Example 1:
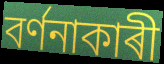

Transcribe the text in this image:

বৰ্ণনাকাৰী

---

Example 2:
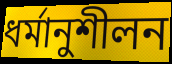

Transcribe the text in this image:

ধৰ্মানুশীলন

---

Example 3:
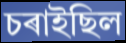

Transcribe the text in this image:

চৰাইছিল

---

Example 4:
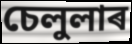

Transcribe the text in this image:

চেলুলাৰ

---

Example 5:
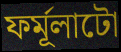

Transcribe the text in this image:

ফৰ্মূলাটো